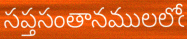
సప్తసంతానములలోఁ